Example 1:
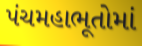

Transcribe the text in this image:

પંચમહાભૂતોમાં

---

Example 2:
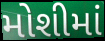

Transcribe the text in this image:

મોશીમાં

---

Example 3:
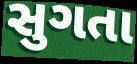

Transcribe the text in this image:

સુગતા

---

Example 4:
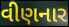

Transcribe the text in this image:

વીણનાર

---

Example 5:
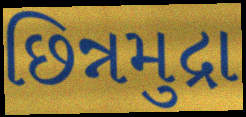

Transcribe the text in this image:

છિન્નમુદ્રા